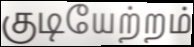
குடியேற்றம்